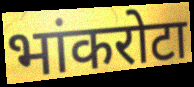
भांकरोटा